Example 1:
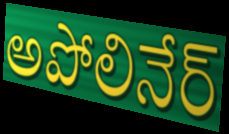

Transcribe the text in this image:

అపోలినేర్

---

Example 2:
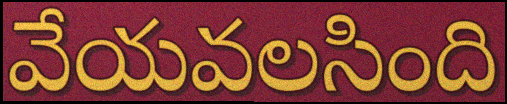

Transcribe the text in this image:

వేయవలసింది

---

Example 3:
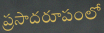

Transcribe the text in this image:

ప్రసాదరూపంలో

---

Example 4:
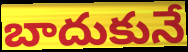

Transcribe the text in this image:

బాదుకునే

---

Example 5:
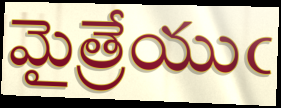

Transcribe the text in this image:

మైత్రేయుఁ